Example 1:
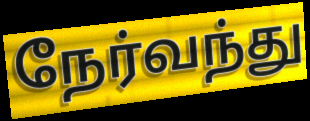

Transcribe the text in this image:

நேர்வந்து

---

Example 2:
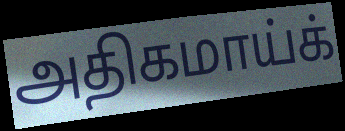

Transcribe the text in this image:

அதிகமாய்க்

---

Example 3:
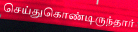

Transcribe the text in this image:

செய்துகொண்டிருந்தார்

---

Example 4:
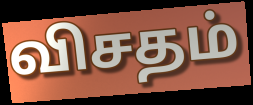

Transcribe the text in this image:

விசதம்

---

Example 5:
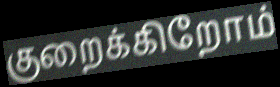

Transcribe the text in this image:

குறைக்கிறோம்